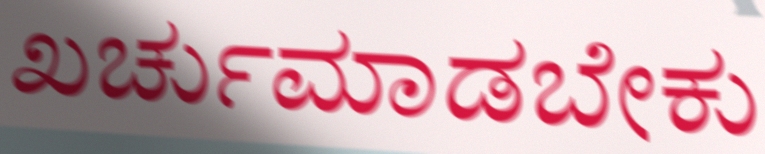
ಖರ್ಚುಮಾಡಬೇಕು